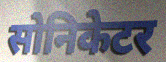
सोनिकेटर